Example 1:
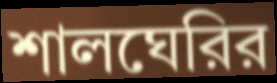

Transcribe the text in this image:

শালঘেরির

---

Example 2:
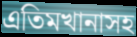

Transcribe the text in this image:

এতিমখানাসহ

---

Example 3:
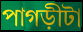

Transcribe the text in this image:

পাগড়ীটা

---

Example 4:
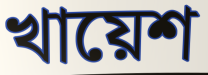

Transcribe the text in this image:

খায়েশ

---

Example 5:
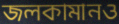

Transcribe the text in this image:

জলকামানও